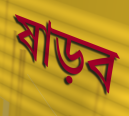
ষাড়ব